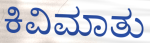
ಕಿವಿಮಾತು